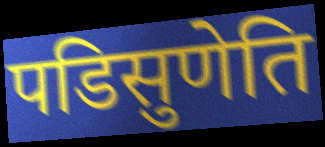
पडिसुणेति